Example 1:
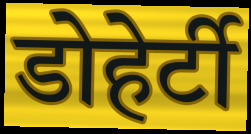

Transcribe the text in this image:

डोहेर्टी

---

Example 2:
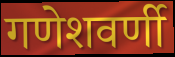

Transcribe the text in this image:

गणेशवर्णी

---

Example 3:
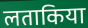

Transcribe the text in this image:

लताकिया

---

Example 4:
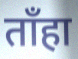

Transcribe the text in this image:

ताँहा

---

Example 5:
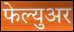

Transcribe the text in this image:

फेल्युअर